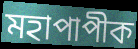
মহাপাপীক